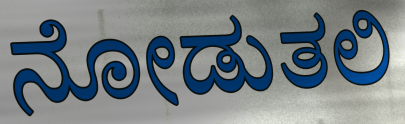
ನೋಡುತಲಿ